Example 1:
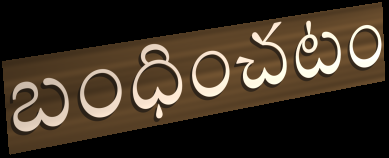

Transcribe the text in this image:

బంధించటం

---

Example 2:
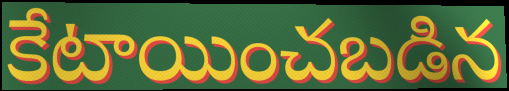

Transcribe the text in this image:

కేటాయించబడిన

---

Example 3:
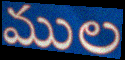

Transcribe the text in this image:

ముల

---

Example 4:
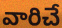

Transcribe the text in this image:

వారిచే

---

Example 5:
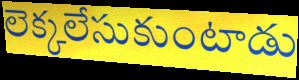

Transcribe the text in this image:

లెక్కలేసుకుంటాడు